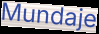
Mundaje